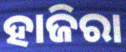
ହାଜିରା